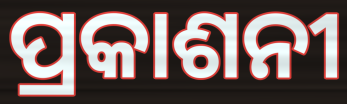
ପ୍ରକାଶନୀ